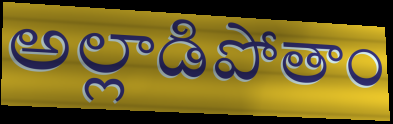
అల్లాడిపోతాం